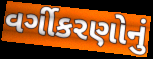
વર્ગીકરણોનું